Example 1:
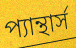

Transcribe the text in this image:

প্যান্থার্স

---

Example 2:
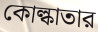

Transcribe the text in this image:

কোল্কাতার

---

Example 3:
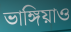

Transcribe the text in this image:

ভাঙ্গিয়াও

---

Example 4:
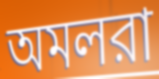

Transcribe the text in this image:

অমলরা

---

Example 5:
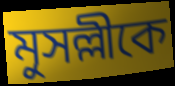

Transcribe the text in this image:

মুসল্লীকে